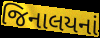
જિનાલયનાં